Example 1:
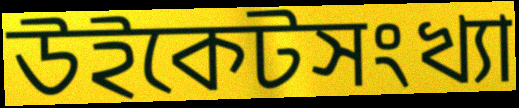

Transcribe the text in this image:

উইকেটসংখ্যা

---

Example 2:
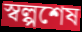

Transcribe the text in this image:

স্বল্পশেষ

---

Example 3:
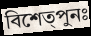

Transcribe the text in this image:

বিশেত্পুনঃ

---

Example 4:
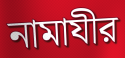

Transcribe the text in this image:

নামাযীর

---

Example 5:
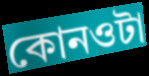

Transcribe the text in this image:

কোনওটা